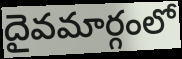
దైవమార్గంలో